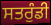
ਸਤਰੁੰਡੀ